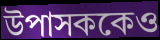
উপাসককেও